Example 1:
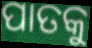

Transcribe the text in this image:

ପାତକୁ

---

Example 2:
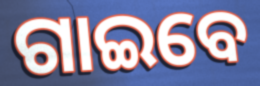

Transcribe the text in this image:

ଗାଇବେ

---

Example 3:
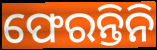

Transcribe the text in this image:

ଫେରନ୍ତିନି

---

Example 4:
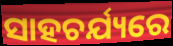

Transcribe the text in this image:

ସାହଚର୍ଯ୍ୟରେ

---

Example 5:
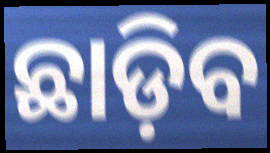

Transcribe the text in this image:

ଛାଡ଼ିବ